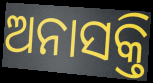
ଅନାସକ୍ତି